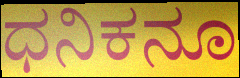
ಧನಿಕನೂ